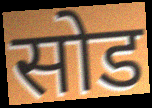
सोड